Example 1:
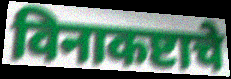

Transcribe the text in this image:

विनाकष्टाचे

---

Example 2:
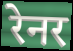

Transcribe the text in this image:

रेनर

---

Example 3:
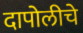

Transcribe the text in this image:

दापोलीचे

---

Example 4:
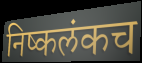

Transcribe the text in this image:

निष्कलंकच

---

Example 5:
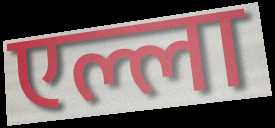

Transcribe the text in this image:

एल्ला